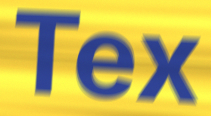
Tex